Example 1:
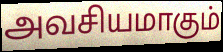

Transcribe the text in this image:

அவசியமாகும்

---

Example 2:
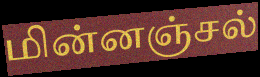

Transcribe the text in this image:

மின்னஞ்சல்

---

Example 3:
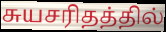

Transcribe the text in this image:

சுயசரிதத்தில்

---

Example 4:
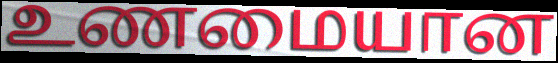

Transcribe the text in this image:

உணமையான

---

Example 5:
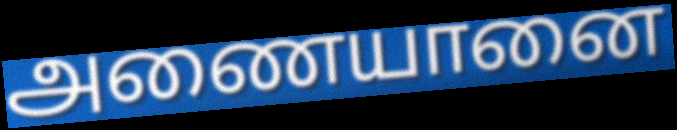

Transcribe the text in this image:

அணையானை